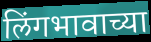
लिंगभावाच्या